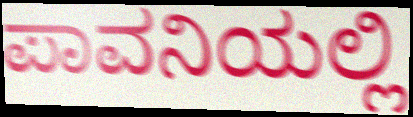
ಪಾವನಿಯಲ್ಲಿ